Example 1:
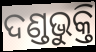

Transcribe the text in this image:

ଦଣ୍ଡଭୁକ୍ତି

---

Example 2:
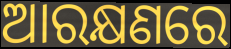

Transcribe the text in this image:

ଆରକ୍ଷଣରେ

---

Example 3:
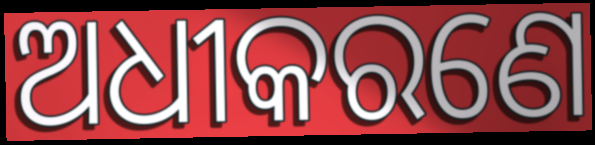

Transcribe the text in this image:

ଅଧୀକରଣେ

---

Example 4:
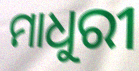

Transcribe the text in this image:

ମାଧୁରୀ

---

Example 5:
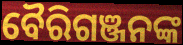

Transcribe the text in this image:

ବୈରିଗଞ୍ଜନଙ୍କ